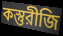
কস্তুরীজি